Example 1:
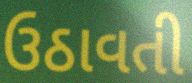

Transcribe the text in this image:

ઉઠાવતી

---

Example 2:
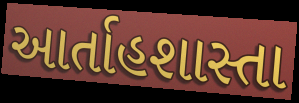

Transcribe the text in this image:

આર્તાહશાસ્તા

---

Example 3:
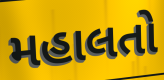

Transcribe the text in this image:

મહાલતો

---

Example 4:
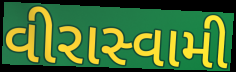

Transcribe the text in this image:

વીરાસ્વામી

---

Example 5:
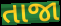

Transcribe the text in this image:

તાજા